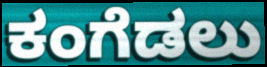
ಕಂಗೆಡಲು